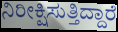
ನಿರೀಕ್ಷಿಸುತ್ತಿದ್ದಾರೆ